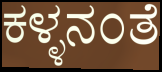
ಕಳ್ಳನಂತೆ